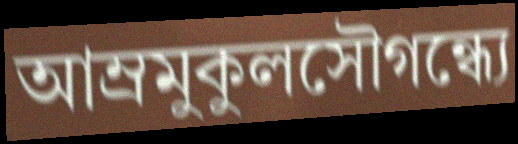
আম্রমুকুলসৌগন্ধ্যে